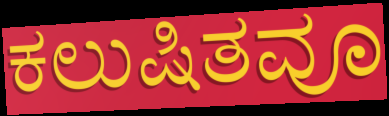
ಕಲುಷಿತವೂ